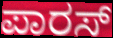
ಪಾರಸ್